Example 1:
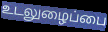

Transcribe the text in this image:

உடலுழைப்பை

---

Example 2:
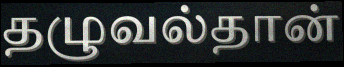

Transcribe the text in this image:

தழுவல்தான்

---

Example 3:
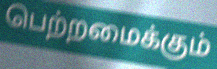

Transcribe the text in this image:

பெற்றமைக்கும்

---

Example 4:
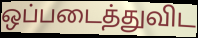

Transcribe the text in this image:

ஒப்படைத்துவிட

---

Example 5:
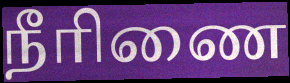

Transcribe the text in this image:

நீரிணை